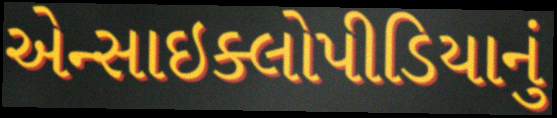
એન્સાઇક્લોપીડિયાનું